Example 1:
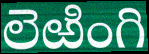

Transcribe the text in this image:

లెఱింగి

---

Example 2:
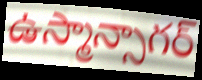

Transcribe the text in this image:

ఉస్మాన్సాగర్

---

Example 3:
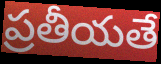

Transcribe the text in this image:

ప్రతీయతే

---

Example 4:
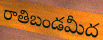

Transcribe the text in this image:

రాతిబండమీద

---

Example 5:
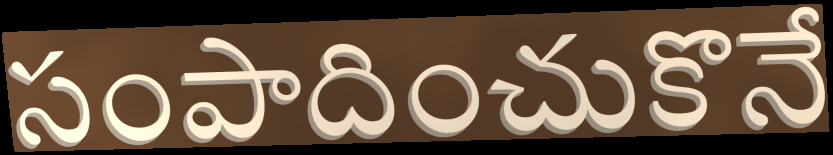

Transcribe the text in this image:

సంపాదించుకొనే